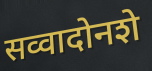
सव्वादोनशे